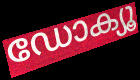
ഡോക്യൂ